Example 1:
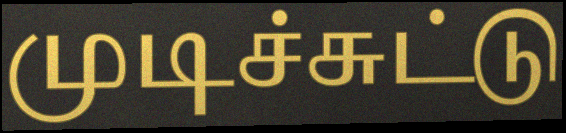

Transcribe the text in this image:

முடிச்சுட்டு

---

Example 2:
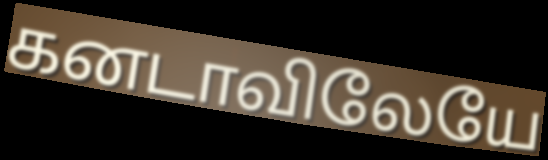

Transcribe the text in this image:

கனடாவிலேயே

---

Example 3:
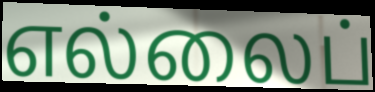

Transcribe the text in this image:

எல்லைப்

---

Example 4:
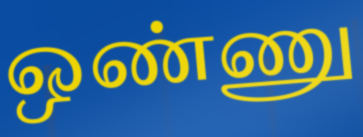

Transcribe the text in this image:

ஒண்ணு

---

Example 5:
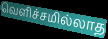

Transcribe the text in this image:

வெளிச்சமில்லாத